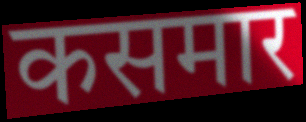
कसमार